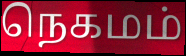
நெகமம்